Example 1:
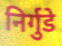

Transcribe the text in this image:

निर्गुडे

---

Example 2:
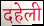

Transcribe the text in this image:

दहेली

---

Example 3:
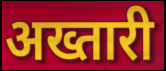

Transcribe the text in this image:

अख्तारी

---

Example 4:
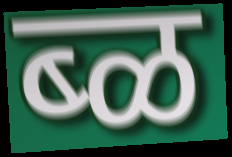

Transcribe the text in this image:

ब्ळ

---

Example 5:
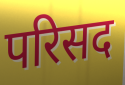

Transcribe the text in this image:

परिसद